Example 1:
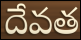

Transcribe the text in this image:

దేవత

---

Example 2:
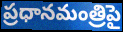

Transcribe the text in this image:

ప్రధానమంత్రిపై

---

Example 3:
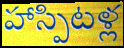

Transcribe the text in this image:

హాస్పిటళ్ల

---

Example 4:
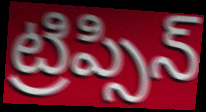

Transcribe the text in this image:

ట్రిప్సిన్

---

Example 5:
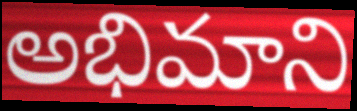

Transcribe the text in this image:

అభిమాని